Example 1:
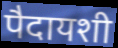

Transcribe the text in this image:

पैदायशी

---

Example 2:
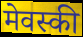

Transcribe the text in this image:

मेवस्की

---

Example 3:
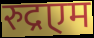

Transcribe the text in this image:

रुद्रएम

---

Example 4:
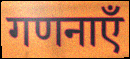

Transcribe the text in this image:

गणनाएँ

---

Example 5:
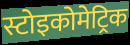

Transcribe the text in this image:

स्टोइकोमेट्रिक